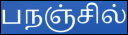
பநஞ்சில்